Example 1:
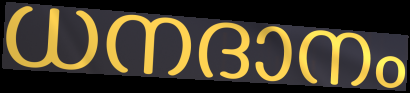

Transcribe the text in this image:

ധനദാനം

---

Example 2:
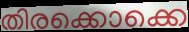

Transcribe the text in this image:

തിരക്കൊക്കെ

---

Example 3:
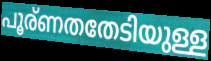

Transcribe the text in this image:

പൂര്ണതതേടിയുള്ള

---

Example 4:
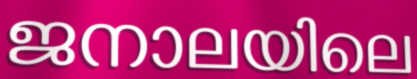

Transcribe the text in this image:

ജനാലയിലെ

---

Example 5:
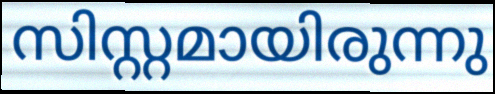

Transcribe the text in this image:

സിസ്റ്റമായിരുന്നു